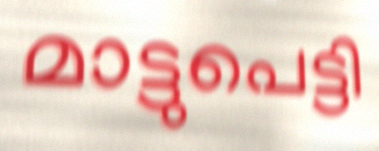
മാട്ടുപെട്ടി